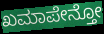
ಖಮಾಪೇನ್ತೋ